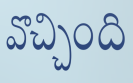
వొచ్చింది